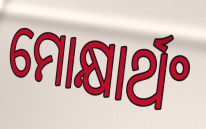
ମୋକ୍ଷାର୍ଥଂ